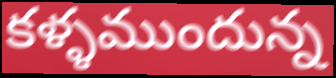
కళ్ళముందున్న